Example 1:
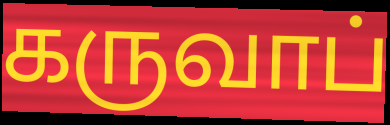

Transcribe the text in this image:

கருவாப்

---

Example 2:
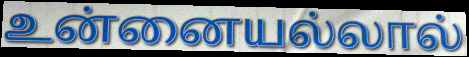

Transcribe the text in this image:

உன்னையல்லால்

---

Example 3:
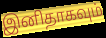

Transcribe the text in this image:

இனிதாகவும்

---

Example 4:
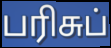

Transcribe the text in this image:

பரிசுப்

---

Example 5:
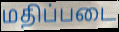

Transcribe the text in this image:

மதிப்படை